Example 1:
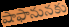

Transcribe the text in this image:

షాఫానునకు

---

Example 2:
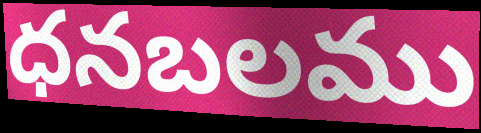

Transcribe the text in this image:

ధనబలము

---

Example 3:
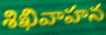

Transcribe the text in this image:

శిఖివాహన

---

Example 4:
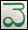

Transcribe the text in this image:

వె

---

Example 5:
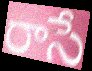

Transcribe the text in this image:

రాసే